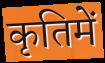
कृतिमें